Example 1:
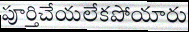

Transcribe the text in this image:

పూర్తిచేయలేకపోయారు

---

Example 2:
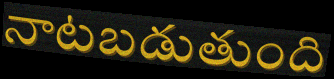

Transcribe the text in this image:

నాటబడుతుంది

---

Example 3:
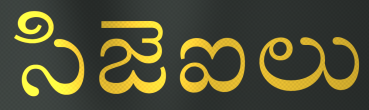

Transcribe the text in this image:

సిజెఐలు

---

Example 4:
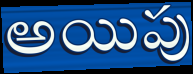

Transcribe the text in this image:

అయిపు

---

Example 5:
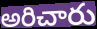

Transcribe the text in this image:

అరిచారు